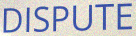
DISPUTE